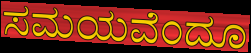
ಸಮಯವೆಂದೂ